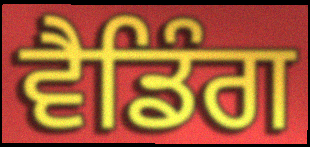
ਵੈਡਿੰਗ